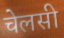
चेलसी